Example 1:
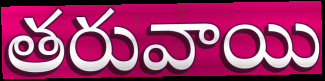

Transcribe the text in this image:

తరువాయి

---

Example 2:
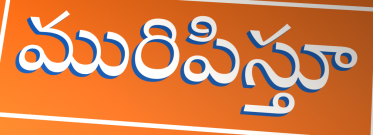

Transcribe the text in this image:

మురిపిస్తూ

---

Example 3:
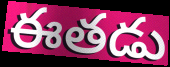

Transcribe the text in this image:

ఈతడు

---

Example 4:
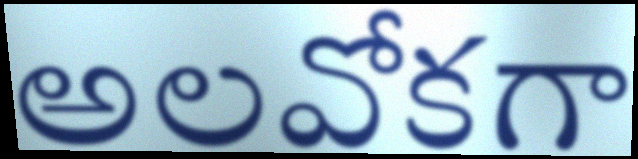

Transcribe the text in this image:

అలవోకగా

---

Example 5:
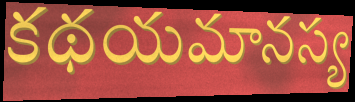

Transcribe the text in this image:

కథయమానస్య